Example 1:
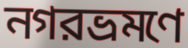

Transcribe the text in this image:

নগরভ্রমণে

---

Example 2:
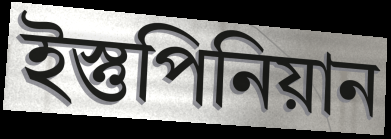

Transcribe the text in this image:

ইস্তুপিনিয়ান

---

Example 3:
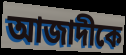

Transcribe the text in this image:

আজাদীকে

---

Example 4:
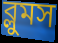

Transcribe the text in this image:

ব্লুমস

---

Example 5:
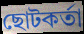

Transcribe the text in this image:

ছোটকর্তা